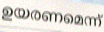
ഉയരണമെന്ന്